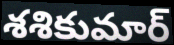
శశికుమార్